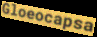
Gloeocapsa